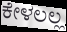
ಕೇಳಲಲ್ಲ